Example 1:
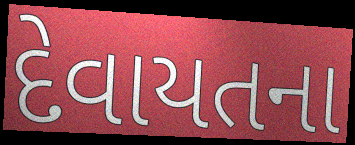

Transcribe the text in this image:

દેવાયતના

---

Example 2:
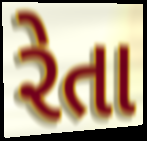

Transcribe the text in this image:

રેતા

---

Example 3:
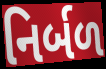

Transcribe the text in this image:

નિર્બળ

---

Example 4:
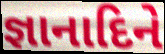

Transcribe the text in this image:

જ્ઞાનાદિને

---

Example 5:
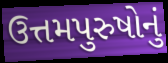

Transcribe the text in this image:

ઉત્તમપુરુષોનું